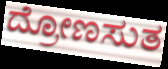
ದ್ರೋಣಸುತ